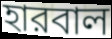
হারবাল